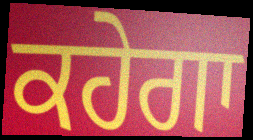
ਕਹੇਗਾ